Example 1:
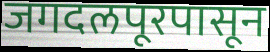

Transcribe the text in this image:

जगदलपूरपासून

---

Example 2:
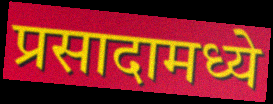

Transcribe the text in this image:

प्रसादामध्ये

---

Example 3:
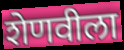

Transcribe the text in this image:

शेणवीला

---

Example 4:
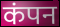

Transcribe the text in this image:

कंपन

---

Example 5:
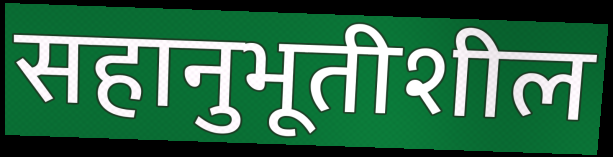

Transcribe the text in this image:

सहानुभूतीशील